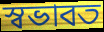
স্বভাবত